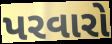
પરવારો